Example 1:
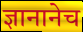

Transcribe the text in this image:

ज्ञानानेच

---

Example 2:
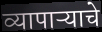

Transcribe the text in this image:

व्यापाऱ्याचे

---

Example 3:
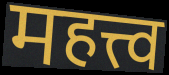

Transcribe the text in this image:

महत्त्व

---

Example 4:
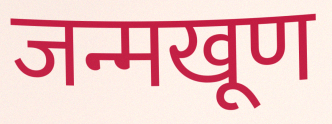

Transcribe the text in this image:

जन्मखूण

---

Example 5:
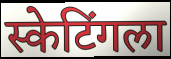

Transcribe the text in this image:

स्केटिंगला